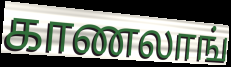
காணலாங்